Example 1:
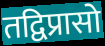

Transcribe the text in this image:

तद्विप्रासो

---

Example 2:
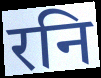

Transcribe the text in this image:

रनि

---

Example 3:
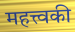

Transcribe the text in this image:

महत्त्वकी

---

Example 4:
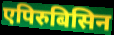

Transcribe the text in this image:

एपिरुबिसिन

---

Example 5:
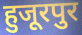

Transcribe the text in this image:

हुजूरपुर